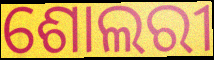
ଶୋଲରୀ